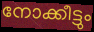
നോക്കീട്ടും